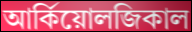
আর্কিয়োলজিকাল